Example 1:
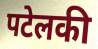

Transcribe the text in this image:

पटेलकी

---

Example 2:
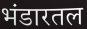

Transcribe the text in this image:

भंडारतल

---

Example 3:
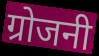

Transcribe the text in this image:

ग्रोजनी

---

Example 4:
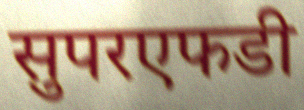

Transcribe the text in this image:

सुपरएफडी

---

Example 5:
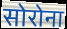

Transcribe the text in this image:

सोरोना